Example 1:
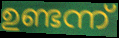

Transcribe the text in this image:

ഉണ്ടന്ന്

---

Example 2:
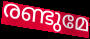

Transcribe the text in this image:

രണ്ടുമേ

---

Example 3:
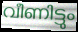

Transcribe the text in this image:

വീണിട്ടും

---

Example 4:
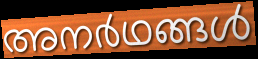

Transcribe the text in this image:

അനർഥങ്ങൾ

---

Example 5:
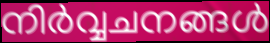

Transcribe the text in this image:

നിർവ്വചനങ്ങൾ